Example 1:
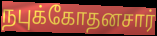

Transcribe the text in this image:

நபுக்கோதனசார்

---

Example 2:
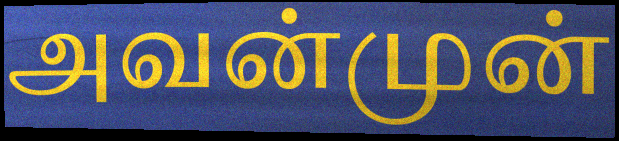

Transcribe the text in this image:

அவன்முன்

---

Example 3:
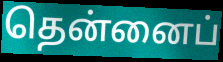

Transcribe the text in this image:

தென்னைப்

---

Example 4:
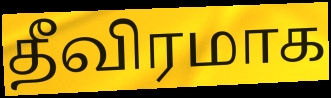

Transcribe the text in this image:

தீவிரமாக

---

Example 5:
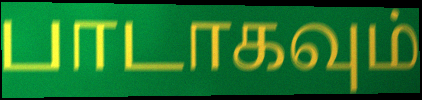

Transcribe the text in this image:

பாடாகவும்